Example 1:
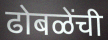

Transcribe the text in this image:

ढोबळेंची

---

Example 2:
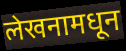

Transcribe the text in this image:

लेखनामधून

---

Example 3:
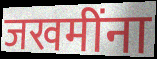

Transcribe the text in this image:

जखमींना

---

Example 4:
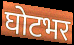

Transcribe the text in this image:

घोटभर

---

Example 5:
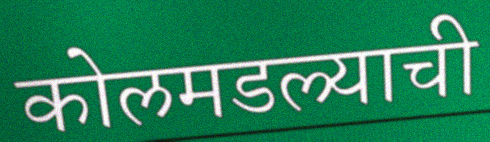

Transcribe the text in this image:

कोलमडल्याची